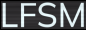
LFSM